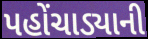
પહોંચાડ્યાની